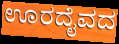
ಊರದೈವದ